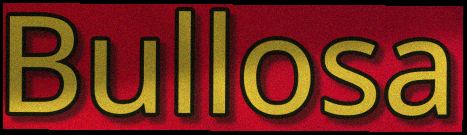
Bullosa